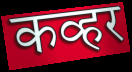
कव्हर